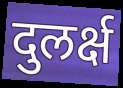
दुलर्क्ष